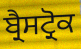
ਬ੍ਰੈਸਟ੍ਰੋਕ